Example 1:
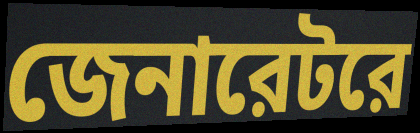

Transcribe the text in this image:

জেনারেটরে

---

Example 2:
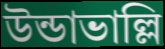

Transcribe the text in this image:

উন্ডাভাল্লি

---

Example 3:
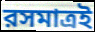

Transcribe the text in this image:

রসমাত্রই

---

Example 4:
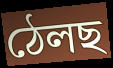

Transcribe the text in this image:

ঠেলছ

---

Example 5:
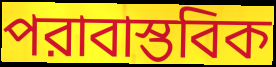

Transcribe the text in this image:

পরাবাস্তবিক